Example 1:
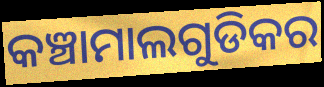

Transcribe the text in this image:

କଞ୍ଚାମାଲଗୁଡିକର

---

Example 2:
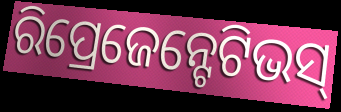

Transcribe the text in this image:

ରିପ୍ରେଜେନ୍ଟେଟିଭସ୍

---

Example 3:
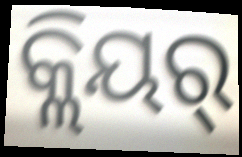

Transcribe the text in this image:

କ୍ଲିୟର୍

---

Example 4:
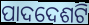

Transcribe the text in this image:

ପାଦଦେଶଟି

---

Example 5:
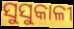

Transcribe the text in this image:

ସୁସୁକାଳୀ